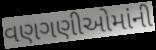
વણગણીઓમાંની